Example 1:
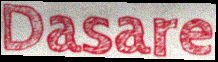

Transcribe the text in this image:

Dasare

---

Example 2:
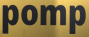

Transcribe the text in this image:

pomp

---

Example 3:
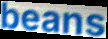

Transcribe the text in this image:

beans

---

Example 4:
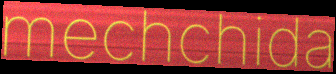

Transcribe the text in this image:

mechchida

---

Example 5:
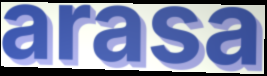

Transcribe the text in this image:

arasa